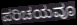
ಪರಿಚಯವೂ